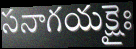
సనాగయక్షైః